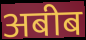
अबीब